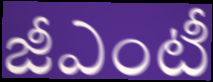
జీఎంటీ